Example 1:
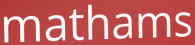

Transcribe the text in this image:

mathams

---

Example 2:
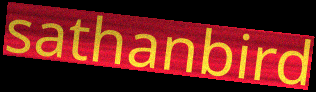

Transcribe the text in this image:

sathanbird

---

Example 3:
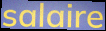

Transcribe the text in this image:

salaire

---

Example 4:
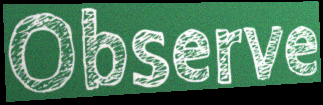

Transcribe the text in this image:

Observe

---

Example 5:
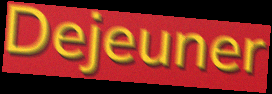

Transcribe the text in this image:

Dejeuner